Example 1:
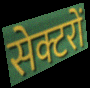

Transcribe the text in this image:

सेक्टरों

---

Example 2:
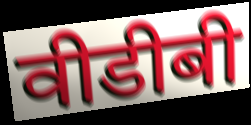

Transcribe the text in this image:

वीडीबी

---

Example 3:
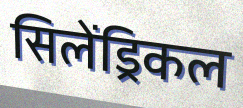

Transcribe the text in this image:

सिलेंड्रिकल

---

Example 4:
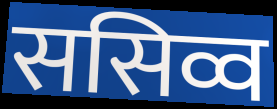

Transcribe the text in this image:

ससिव्व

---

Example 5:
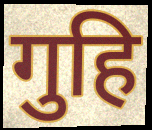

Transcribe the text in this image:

गुहि